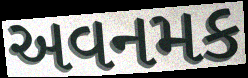
અવનમક